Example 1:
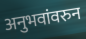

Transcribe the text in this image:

अनुभवांवरुन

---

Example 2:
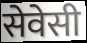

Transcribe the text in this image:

सेवेसी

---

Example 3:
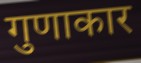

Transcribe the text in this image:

गुणाकार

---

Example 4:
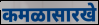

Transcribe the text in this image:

कमळासारखे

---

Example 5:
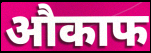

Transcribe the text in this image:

औकाफ